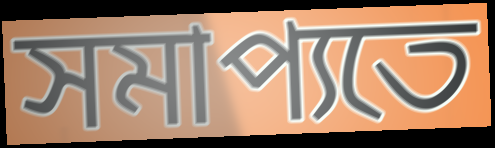
সমাপ্যতে